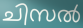
ചിസൽ